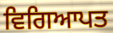
ਵਿਗਿਆਪਤ